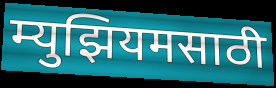
म्युझियमसाठी